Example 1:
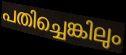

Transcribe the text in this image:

പതിച്ചെങ്കിലും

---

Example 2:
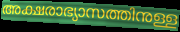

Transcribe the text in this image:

അക്ഷരാഭ്യാസത്തിനുള്ള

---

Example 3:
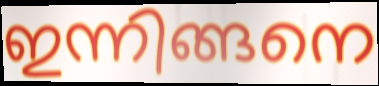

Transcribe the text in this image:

ഇന്നിങ്ങനെ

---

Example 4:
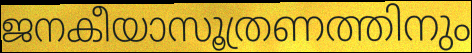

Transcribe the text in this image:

ജനകീയാസൂത്രണത്തിനും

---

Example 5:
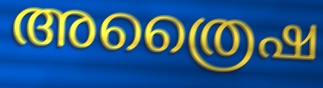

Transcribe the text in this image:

അത്രൈഷ